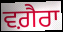
ਵਗ਼ੈਰਾ